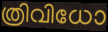
ത്രിവിധോ